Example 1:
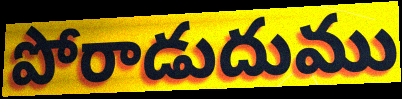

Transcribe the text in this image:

పోరాడుదుము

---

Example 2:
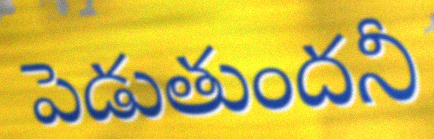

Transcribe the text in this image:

పెడుతుందనీ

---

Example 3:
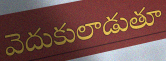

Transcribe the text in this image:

వెదుకులాడుతూ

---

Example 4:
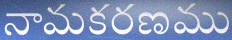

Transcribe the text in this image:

నామకరణము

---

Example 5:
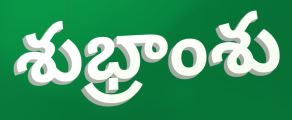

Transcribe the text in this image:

శుభ్రాంశు